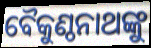
ବୈକୁଣ୍ଠନାଥଙ୍କୁ